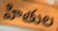
హితుల